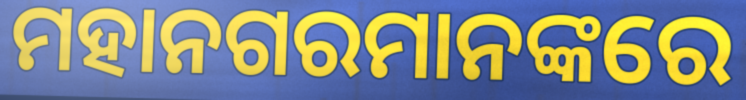
ମହାନଗରମାନଙ୍କରେ